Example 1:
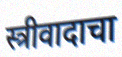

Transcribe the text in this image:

स्त्रीवादाचा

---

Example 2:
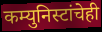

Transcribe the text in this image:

कम्युनिस्टांचेही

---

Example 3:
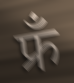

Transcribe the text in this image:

फ्रँ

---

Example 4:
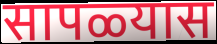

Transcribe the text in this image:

सापळ्यास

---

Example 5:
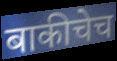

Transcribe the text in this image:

बाकीचेच